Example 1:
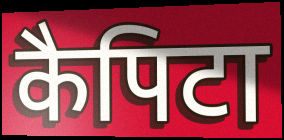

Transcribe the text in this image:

कैपिटा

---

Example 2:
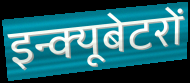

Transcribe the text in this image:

इन्क्यूबेटरों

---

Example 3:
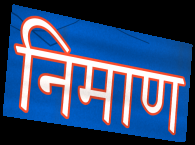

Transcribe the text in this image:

निमाण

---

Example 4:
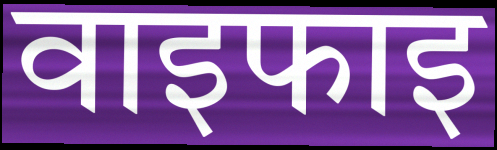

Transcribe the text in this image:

वाइफाइ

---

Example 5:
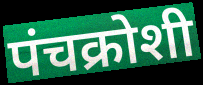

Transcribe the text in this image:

पंचक्रोशी